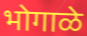
भोगाळे